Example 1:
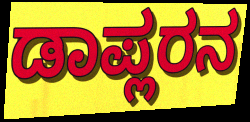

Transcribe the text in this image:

ಡಾಪ್ಲರನ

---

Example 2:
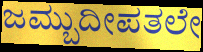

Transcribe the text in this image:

ಜಮ್ಬುದೀಪತಲೇ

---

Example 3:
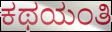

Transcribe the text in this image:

ಕಥಯಂತಿ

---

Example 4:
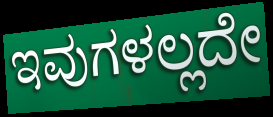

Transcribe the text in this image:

ಇವುಗಳಲ್ಲದೇ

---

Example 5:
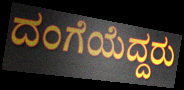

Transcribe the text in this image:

ದಂಗೆಯೆದ್ದರು